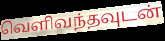
வெளிவந்தவுடன்